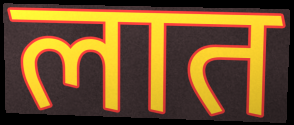
लात